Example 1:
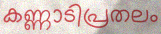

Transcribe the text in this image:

കണ്ണാടിപ്രതലം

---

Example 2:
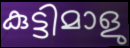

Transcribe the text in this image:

കുട്ടിമാളു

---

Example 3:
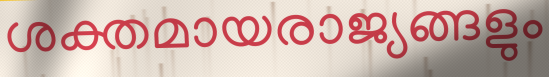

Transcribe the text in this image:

ശക്തമായരാജ്യങ്ങളും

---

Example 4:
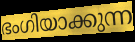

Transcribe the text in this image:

ഭംഗിയാക്കുന്ന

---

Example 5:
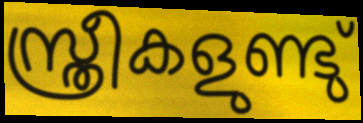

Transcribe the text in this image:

സ്ത്രീകളുണ്ടു്